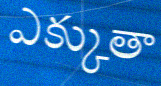
ఎక్కుతా